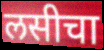
लसीचा